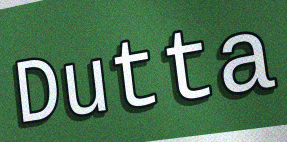
Dutta